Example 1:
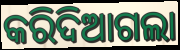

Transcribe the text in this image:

କରିଦିଆଗଲା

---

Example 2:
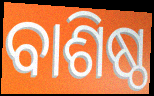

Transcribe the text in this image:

ବାଶିଷ୍ଠ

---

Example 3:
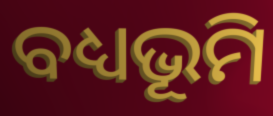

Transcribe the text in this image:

ବଧ୍ୟଭୂମି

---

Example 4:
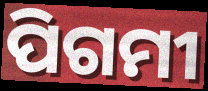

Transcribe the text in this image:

ପିଗମୀ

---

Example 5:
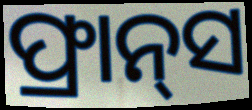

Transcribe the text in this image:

ଫ୍ରାନ୍‌ସ